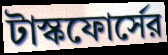
টাস্কফোর্সের